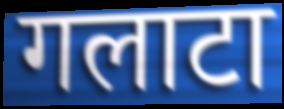
गलाटा